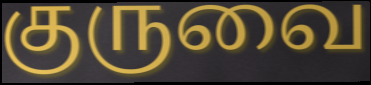
குருவை